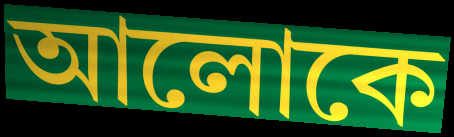
আলোকে